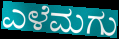
ಎಳೆಮಗು